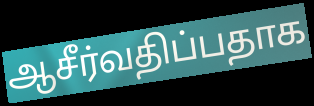
ஆசீர்வதிப்பதாக